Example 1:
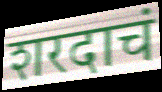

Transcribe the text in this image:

शरदाचं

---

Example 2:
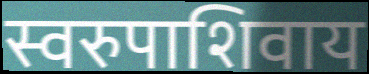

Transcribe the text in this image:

स्वरुपाशिवाय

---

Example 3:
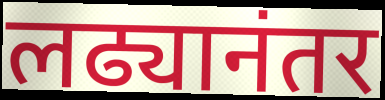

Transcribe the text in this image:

लढ्यानंतर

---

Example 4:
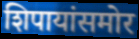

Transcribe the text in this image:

शिपायांसमोर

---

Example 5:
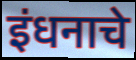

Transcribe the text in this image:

इंधनाचे